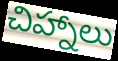
చిహ్నాలు